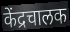
केंद्रचालक